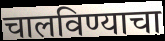
चालविण्याचा